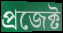
প্রজেক্ট